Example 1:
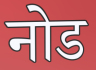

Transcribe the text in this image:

नोड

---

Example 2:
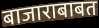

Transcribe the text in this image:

बाजाराबाबत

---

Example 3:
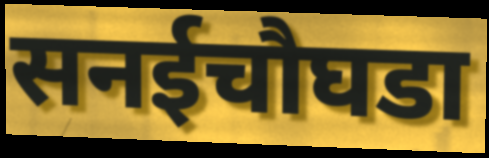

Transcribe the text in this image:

सनईचौघडा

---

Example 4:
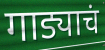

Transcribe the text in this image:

गाड्याचं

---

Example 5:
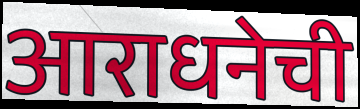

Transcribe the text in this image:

आराधनेची